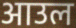
आउल